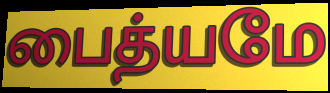
பைத்யமே